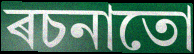
ৰচনাতো